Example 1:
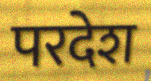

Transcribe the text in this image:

परदेश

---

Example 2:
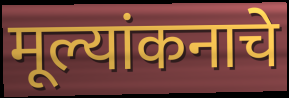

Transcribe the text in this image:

मूल्यांकनाचे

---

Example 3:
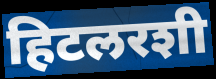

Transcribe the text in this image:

हिटलरशी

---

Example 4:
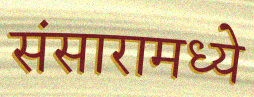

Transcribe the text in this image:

संसारामध्ये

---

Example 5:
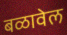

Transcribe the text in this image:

बळावेल